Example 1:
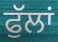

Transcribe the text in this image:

ਫੁੱਲਾਂ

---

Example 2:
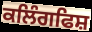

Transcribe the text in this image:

ਕਲਿੰਗਫਿਸ਼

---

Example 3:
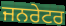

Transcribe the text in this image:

ਜਨਰੇਟਰ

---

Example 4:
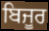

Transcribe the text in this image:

ਬਿਜੂਰ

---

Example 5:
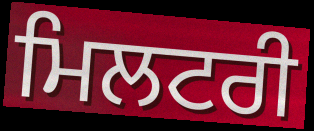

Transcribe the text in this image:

ਮਿਲਟਰੀ